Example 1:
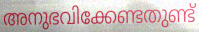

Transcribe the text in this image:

അനുഭവിക്കേണ്ടതുണ്ട്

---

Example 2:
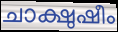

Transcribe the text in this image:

ചാക്ഷുഷീം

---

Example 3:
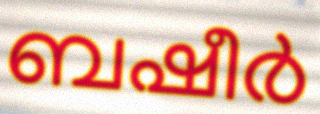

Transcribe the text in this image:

ബഷീർ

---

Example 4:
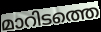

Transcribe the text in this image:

മാറിടത്തെ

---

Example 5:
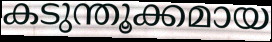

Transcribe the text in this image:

കടുന്തൂക്കമായ